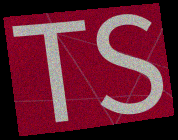
TS